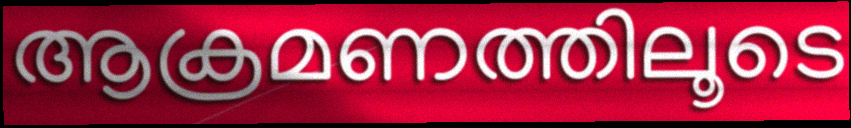
ആക്രമണത്തിലൂടെ